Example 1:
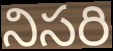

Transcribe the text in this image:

నిసరి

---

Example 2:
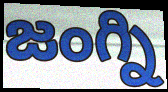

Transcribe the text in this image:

జంగ్ని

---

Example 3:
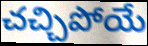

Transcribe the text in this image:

చచ్చిపోయే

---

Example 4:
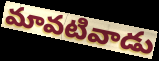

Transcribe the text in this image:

మావటివాడు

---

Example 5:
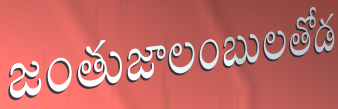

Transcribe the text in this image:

జంతుజాలంబులతోడ